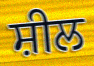
ਸ਼ੀਲ